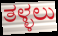
ತಳ್ಳಲು